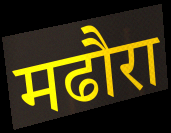
मढौरा